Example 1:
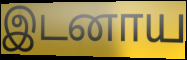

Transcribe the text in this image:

இடனாய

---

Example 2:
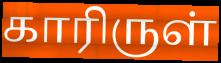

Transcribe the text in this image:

காரிருள்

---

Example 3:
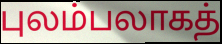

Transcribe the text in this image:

புலம்பலாகத்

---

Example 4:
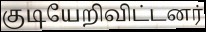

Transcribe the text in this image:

குடியேறிவிட்டனர்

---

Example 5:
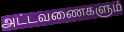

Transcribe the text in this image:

அட்டவணைகளும்